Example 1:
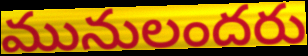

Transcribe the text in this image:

మునులందరు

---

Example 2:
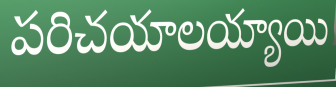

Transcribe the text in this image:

పరిచయాలయ్యాయి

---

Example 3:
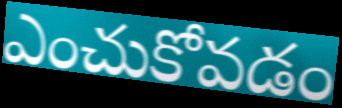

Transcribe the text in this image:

ఎంచుకోవడం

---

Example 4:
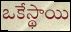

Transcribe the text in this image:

ఒకేస్థాయి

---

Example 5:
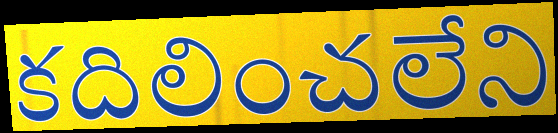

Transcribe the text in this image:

కదిలించలేని